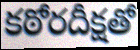
కఠోరదీక్షతో